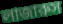
লাজারুস